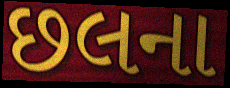
છલના